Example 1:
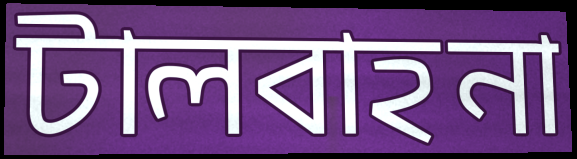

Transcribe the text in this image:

টালবাহনা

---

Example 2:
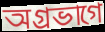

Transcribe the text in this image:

অগ্রভাগে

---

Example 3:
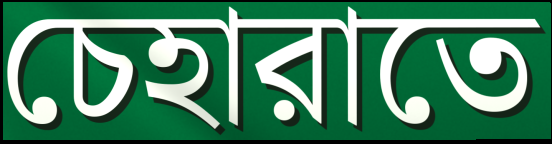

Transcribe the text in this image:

চেহারাতে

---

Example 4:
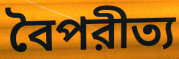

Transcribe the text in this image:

বৈপরীত্য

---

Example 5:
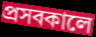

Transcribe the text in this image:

প্রসবকালে